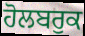
ਹੋਲਬਰੁਕ